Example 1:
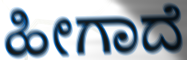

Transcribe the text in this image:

ಹೀಗಾದೆ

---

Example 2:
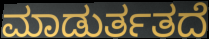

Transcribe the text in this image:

ಮಾಡುರ್ತತದೆ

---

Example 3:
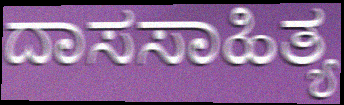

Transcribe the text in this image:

ದಾಸಸಾಹಿತ್ಯ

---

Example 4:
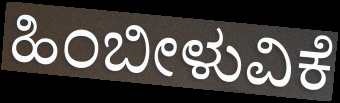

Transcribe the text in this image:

ಹಿಂಬೀಳುವಿಕೆ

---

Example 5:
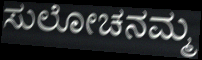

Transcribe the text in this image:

ಸುಲೋಚನಮ್ಮ